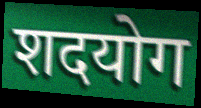
शदयोग